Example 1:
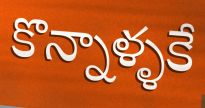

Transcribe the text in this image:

కొన్నాళ్ళకే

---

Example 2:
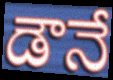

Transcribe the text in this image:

డౌనే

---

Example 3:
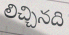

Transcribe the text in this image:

లిచ్చినది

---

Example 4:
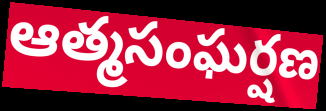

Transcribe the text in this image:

ఆత్మసంఘర్షణ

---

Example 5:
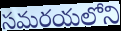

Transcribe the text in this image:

సమరయలోని